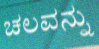
ಚಲವನ್ನು